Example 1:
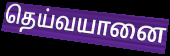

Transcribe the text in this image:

தெய்வயானை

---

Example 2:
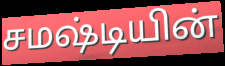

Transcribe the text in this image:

சமஷ்டியின்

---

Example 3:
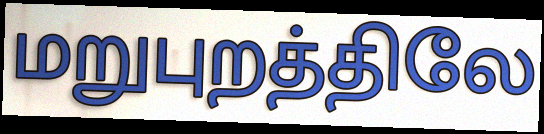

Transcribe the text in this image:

மறுபுறத்திலே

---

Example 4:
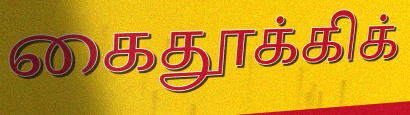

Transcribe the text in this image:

கைதூக்கிக்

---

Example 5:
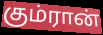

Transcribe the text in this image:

கும்ரான்